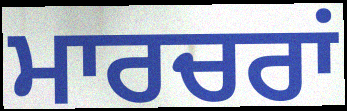
ਮਾਰਚਰਾਂ